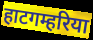
हाटगम्हरिया